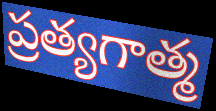
ప్రత్యగాత్మ